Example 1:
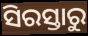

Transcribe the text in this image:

ସିରସ୍ତାରୁ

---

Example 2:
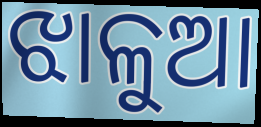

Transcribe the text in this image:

ଝାଳୁଆ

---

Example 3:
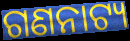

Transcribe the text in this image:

ଗଣନାଟ୍ୟ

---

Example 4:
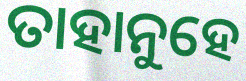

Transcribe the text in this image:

ତାହାନୁହେ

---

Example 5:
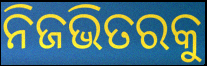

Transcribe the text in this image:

ନିଜଭିତରକୁ